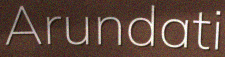
Arundati